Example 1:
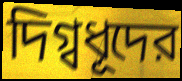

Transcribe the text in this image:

দিগ্বধূদের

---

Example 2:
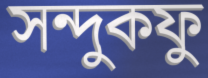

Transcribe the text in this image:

সন্দুকফু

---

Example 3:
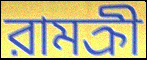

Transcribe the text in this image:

রামক্রী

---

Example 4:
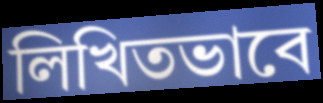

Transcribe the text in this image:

লিখিতভাবে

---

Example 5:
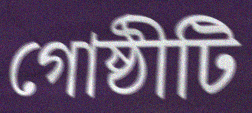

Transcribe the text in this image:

গোষ্ঠীটি